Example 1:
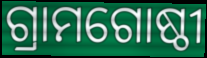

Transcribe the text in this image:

ଗ୍ରାମଗୋଷ୍ଠୀ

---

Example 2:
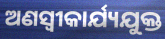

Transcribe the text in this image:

ଅଣସ୍ବୀକାର୍ଯ୍ୟଯୁକ୍ତ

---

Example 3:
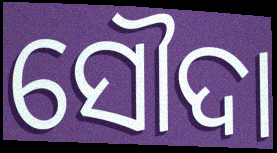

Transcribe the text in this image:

ସୌଦା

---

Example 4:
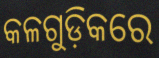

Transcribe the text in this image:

କଳଗୁଡ଼ିକରେ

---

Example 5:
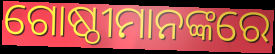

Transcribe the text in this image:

ଗୋଷ୍ଠୀମାନଙ୍କରେ